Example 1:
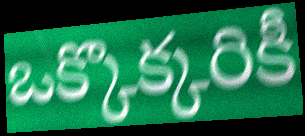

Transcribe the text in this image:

ఒక్కొక్కరికీ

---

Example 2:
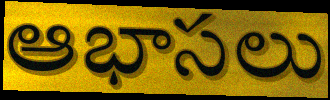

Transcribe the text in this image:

ఆభాసలు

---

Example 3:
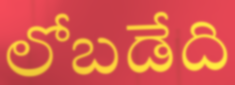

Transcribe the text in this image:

లోబడేది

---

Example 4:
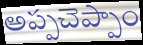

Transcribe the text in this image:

అప్పచెప్పాం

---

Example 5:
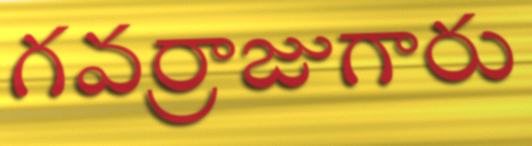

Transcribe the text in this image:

గవర్రాజుగారు